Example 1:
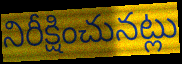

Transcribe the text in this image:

నిరీక్షించునట్లు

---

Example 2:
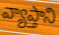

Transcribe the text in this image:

వ్యాప్తాని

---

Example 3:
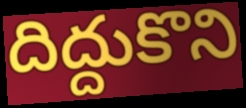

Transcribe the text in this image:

దిద్దుకొని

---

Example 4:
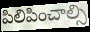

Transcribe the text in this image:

పిలిపించాల్సి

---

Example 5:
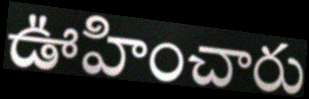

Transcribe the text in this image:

ఊహించారు